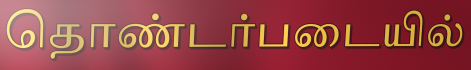
தொண்டர்படையில்